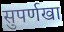
सुपर्णखा